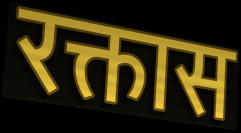
रक्तास